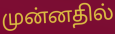
முன்னதில்